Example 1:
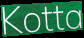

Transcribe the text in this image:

Kotta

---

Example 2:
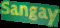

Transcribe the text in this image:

Sangay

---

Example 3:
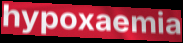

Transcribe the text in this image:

hypoxaemia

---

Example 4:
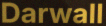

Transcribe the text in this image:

Darwall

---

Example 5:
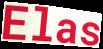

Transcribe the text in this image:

Elas